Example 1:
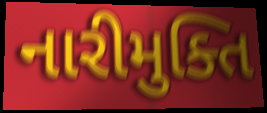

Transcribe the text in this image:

નારીમુક્તિ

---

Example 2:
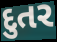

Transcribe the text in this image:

દુતર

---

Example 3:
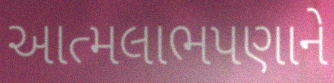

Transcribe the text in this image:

આત્મલાભપણાને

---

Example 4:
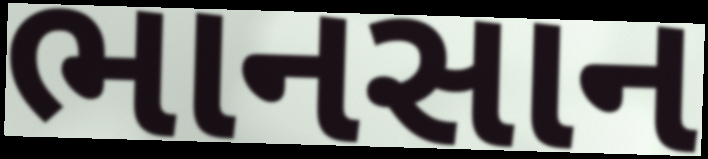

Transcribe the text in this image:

ભાનસાન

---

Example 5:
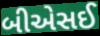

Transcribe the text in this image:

બીએસઈ